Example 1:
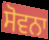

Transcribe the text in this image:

ਸੋਵਨਾ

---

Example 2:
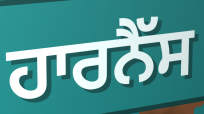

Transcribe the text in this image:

ਹਾਰਨੈੱਸ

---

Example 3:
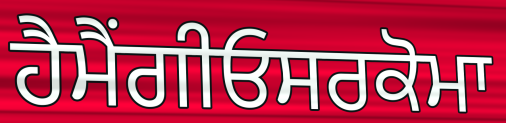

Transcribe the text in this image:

ਹੈਮੈਂਗੀਓਸਰਕੋਮਾ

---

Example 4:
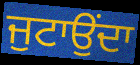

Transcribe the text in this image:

ਜੁਟਾਉਂਦਾ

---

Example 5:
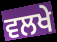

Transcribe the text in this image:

ਵਲਖੇ